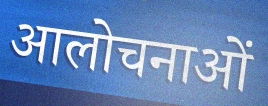
आलोचनाओं